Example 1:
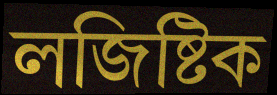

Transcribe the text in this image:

লজিষ্টিক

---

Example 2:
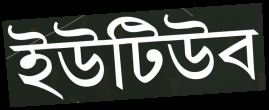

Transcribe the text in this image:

ইউটিউব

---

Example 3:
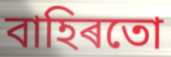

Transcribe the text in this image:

বাহিৰতো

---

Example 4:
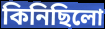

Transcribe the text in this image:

কিনিছিলো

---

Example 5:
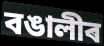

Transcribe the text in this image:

বঙালীৰ